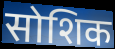
सोशिक